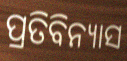
ପ୍ରତିବିନ୍ୟାସ